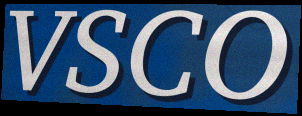
VSCO